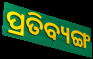
ପ୍ରତିବ୍ୟଙ୍ଗ